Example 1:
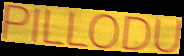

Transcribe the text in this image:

PILLODU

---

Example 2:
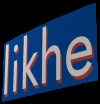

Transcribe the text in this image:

likhe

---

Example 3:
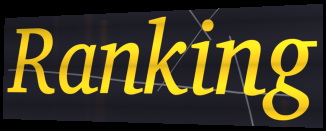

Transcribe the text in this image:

Ranking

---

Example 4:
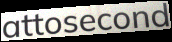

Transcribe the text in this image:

attosecond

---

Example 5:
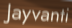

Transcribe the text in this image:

Jayvanti